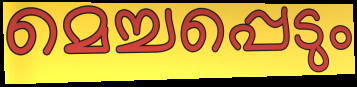
മെച്ചപ്പെടും